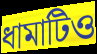
ধামাটিও